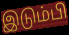
இடும்பி